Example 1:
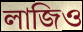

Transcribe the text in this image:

লাজিও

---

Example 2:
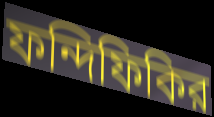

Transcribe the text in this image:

ফন্দিফিকির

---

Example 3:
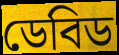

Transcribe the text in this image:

ডেবিড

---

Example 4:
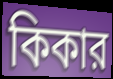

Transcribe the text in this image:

কিকার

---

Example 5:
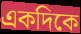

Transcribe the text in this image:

একদিকে